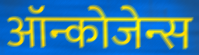
ऑन्कोजेन्स